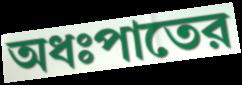
অধঃপাতের